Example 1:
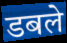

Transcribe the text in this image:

डबले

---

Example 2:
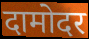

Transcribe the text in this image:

दामोदर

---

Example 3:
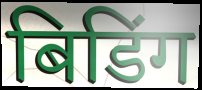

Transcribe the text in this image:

बिडिंग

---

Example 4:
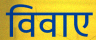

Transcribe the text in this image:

विवाए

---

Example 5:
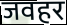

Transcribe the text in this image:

जवहर